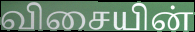
விசையின்